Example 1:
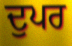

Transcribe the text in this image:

ਦੁਪਰ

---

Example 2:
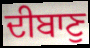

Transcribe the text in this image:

ਦੀਬਾਣੁ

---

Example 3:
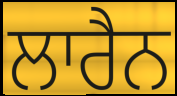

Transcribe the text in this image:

ਲਾਰੈਨ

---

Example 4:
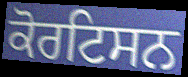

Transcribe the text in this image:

ਕੋਰਟਿਸਨ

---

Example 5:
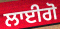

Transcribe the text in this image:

ਲਾਈਗੋ